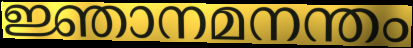
ജ്ഞാനമനന്തം